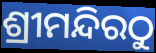
ଶ୍ରୀମନ୍ଦିରଠୁ